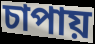
চাপায়